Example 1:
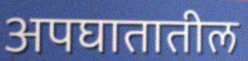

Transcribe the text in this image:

अपघातातील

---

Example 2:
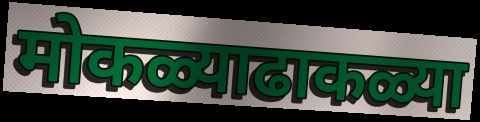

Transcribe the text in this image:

मोकळ्याढाकळ्या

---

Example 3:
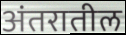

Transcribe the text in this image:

अंतरातील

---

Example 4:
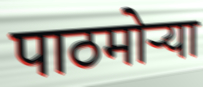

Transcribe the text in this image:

पाठमोऱ्या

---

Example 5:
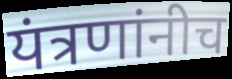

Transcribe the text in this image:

यंत्रणांनीच